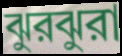
ঝুরঝুরা